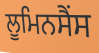
ਲੂਮਿਨਸੈਂਸ